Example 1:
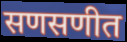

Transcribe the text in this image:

सणसणीत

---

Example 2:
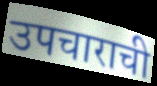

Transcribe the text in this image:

उपचाराची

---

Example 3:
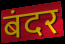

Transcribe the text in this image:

बंदर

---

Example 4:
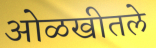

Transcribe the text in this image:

ओळखीतले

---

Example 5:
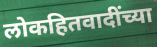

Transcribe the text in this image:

लोकहितवादींच्या